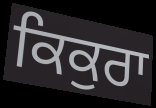
ਕਿਕੁਰਾ